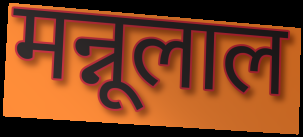
मन्नूलाल